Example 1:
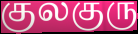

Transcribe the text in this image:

குலகுரு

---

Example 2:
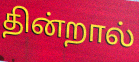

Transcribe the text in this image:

தின்றால்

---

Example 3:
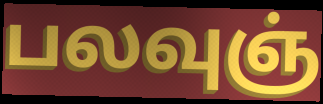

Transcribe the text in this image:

பலவுஞ்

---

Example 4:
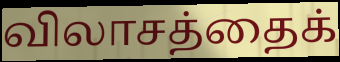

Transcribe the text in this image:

விலாசத்தைக்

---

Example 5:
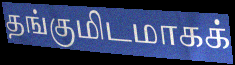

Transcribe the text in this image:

தங்குமிடமாகக்